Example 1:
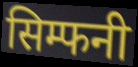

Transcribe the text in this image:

सिम्फनी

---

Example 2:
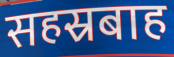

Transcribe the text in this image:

सहस्रबाह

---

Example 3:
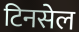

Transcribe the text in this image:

टिनसेल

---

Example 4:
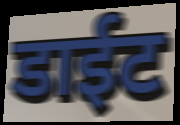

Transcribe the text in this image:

डाईट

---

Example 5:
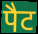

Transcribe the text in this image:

पैट